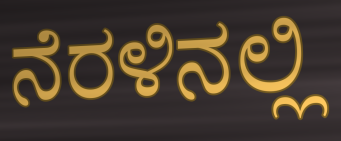
ನೆರಳಿನಲ್ಲಿ